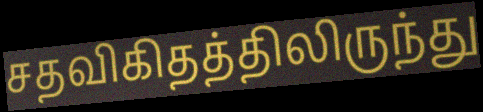
சதவிகிதத்திலிருந்து